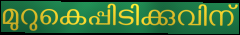
മുറുകെപ്പിടിക്കുവിന്